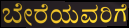
ಬೇರೆಯವರಿಗೆ